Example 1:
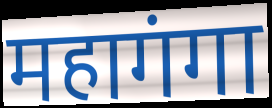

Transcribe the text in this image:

महागंगा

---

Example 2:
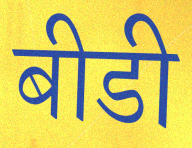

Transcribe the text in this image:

बीडी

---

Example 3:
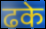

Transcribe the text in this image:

ढके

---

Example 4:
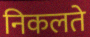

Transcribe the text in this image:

निकलते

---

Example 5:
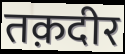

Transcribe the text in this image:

तक़दीर